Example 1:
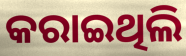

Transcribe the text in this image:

କରାଇଥିଲି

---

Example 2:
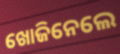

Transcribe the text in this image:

ଖୋଜିନେଲେ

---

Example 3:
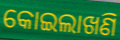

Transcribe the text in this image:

କୋଇଲାଖଣି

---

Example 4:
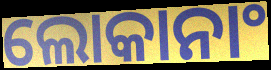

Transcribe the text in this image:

ଲୋକାନାଂ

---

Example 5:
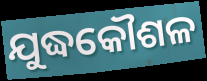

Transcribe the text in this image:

ଯୁଦ୍ଧକୌଶଳ